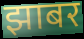
झाबर